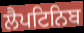
ਲੈਪਟਿਨਿਬ